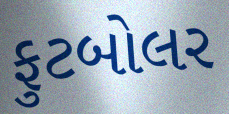
ફુટબોલર